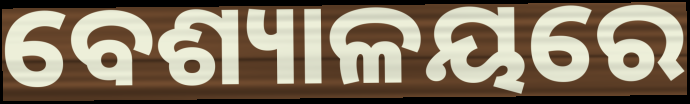
ବେଶ୍ୟାଳୟରେ